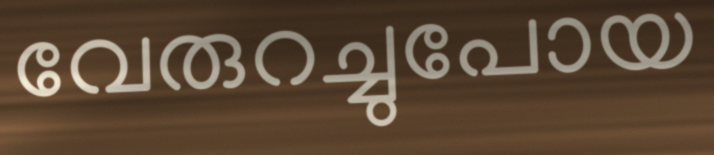
വേരുറച്ചുപോയ